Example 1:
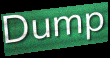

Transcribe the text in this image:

Dump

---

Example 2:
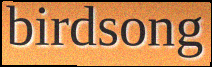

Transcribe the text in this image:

birdsong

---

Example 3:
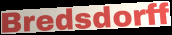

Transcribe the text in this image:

Bredsdorff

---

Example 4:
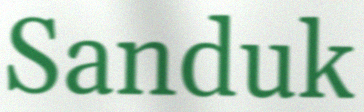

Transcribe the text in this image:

Sanduk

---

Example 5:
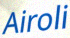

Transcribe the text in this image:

Airoli